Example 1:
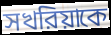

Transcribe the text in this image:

সখরিয়াকে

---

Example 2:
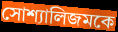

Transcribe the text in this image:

সোশ্যালিজমকে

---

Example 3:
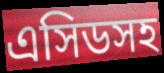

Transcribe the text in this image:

এসিডসহ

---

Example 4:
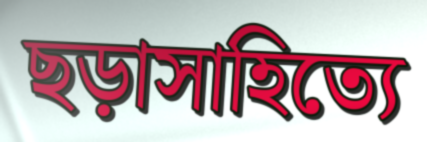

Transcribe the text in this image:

ছড়াসাহিত্যে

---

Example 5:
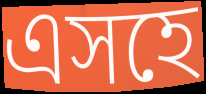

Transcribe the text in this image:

এসহে